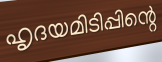
ഹൃദയമിടിപ്പിന്റെ